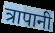
त्रापानी